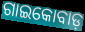
ଗାଇକୋବାଡ଼